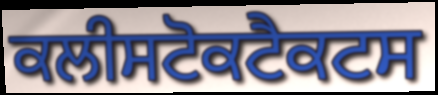
ਕਲੀਸਟੋਕਟੈਕਟਸ